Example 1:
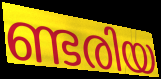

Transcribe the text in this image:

ണ്ടരിയ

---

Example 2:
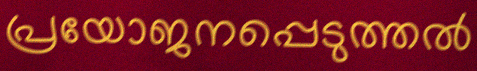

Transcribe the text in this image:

പ്രയോജനപ്പെടുത്തൽ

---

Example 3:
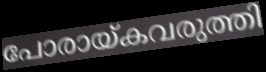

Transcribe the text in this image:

പോരായ്കവരുത്തി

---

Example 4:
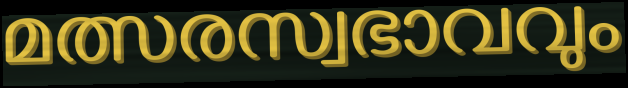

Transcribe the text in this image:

മത്സരസ്വഭാവവും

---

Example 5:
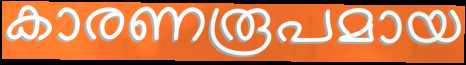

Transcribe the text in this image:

കാരണരൂപമായ